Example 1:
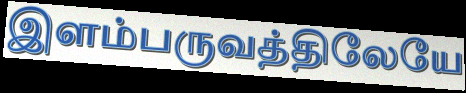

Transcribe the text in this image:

இளம்பருவத்திலேயே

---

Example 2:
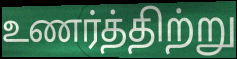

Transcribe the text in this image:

உணர்த்திற்று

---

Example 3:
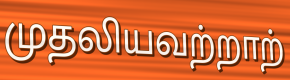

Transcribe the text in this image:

முதலியவற்றாற்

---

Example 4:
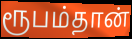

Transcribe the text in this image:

ரூபம்தான்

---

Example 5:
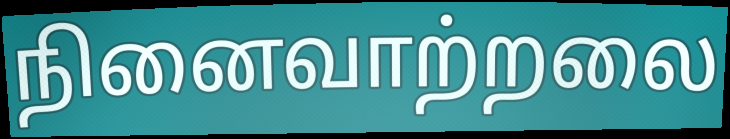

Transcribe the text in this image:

நினைவாற்றலை